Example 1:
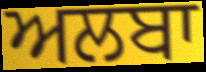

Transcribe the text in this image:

ਅਲਬਾ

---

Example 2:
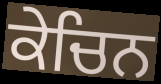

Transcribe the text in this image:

ਕੇਚਿਨ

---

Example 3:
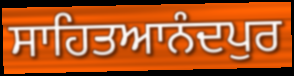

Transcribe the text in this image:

ਸਾਹਿਤਆਨੰਦਪੁਰ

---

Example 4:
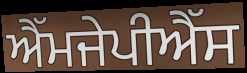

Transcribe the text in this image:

ਐੱਮਜੇਪੀਐੱਸ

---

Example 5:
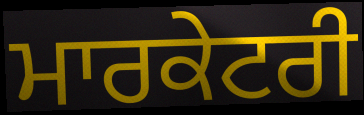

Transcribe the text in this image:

ਮਾਰਕੇਟਰੀ